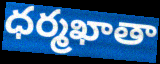
ధర్మఖాతా